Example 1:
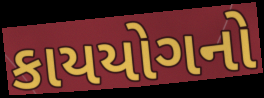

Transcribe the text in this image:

કાયયોગનો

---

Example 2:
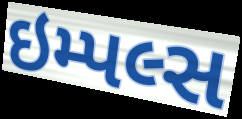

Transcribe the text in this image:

ઇમ્પલ્સ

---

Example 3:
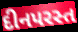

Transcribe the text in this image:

દીનપરસ્ત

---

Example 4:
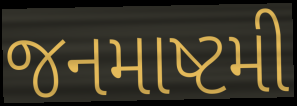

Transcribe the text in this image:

જનમાષ્ટમી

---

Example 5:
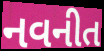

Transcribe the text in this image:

નવનીત